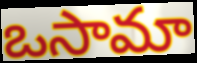
ఒసామా